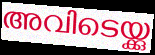
അവിടെയ്ക്കു